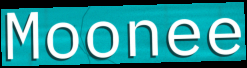
Moonee